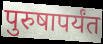
पुरुषापर्यंत